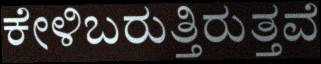
ಕೇಳಿಬರುತ್ತಿರುತ್ತವೆ